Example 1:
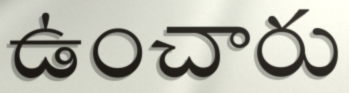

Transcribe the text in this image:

ఉంచారు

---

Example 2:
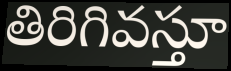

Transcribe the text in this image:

తిరిగివస్తూ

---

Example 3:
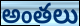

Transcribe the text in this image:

అంతలు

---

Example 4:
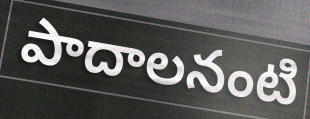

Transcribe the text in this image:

పాదాలనంటి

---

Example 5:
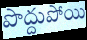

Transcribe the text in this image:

పొద్దుపోయి